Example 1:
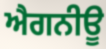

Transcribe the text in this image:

ਐਗਨੀਊ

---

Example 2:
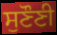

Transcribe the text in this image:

ਸੁਣੌਣੀ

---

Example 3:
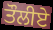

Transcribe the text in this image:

ਤੌਲੀਏ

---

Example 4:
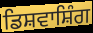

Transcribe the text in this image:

ਡਿਸ਼ਵਾਸ਼ਿੰਗ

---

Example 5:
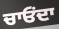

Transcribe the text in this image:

ਚਾਓਂਦਾ